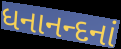
ધનાનન્દનાં